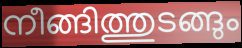
നീങ്ങിത്തുടങ്ങും